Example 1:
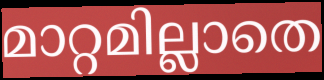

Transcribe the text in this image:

മാറ്റമില്ലാതെ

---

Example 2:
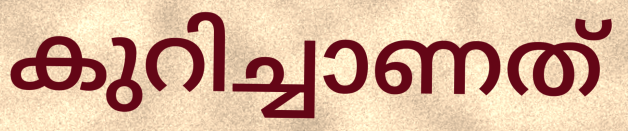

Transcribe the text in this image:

കുറിച്ചാണത്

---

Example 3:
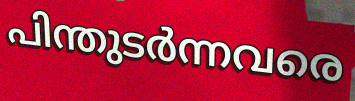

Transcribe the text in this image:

പിന്തുടർന്നവരെ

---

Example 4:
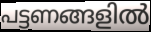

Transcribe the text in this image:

പട്ടണങ്ങളിൽ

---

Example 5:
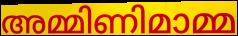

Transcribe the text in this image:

അമ്മിണിമാമ്മ